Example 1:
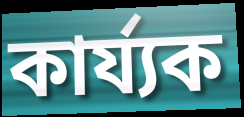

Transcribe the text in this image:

কাৰ্য্যক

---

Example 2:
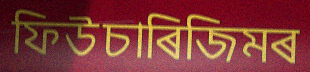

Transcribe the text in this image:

ফিউচাৰিজিমৰ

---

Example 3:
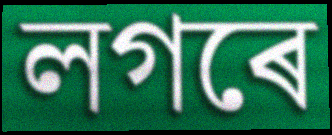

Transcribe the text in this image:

লগৰে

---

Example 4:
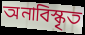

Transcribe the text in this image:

অনাবিস্কৃত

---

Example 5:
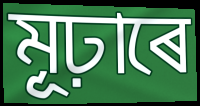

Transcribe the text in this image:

মূঢ়াৰে